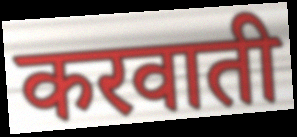
करवाती